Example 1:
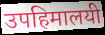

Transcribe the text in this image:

उपहिमालयी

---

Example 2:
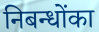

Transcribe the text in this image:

निबन्धोंका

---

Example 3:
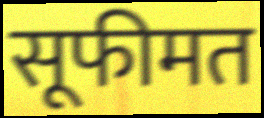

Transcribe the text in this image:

सूफीमत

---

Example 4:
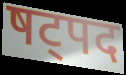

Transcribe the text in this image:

षट्पद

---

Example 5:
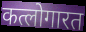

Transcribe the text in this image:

कत्लोगारत